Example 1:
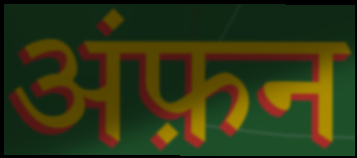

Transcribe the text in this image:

अंफ़न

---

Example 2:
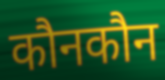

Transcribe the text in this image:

कौनकौन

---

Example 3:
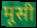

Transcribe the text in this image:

मूसी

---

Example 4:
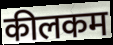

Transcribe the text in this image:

कीलकम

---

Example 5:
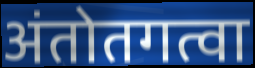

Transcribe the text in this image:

अंतोतगत्वा